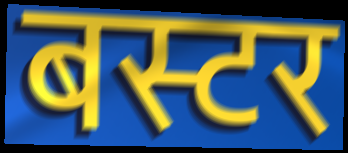
बस्टर